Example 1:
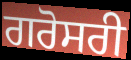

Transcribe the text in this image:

ਗਰੋਸਰੀ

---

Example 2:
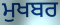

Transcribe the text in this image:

ਮੁਖਬਰ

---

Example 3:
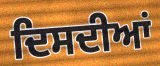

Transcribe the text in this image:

ਦਿਸਦੀਆਂ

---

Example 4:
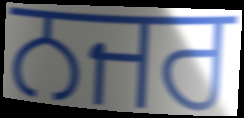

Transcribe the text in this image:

ਨਜਰ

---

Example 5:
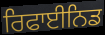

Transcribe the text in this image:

ਰਿਫਾਈਨਿਡ